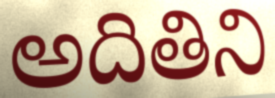
అదితిని